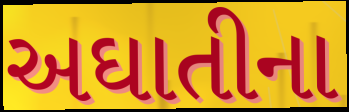
અઘાતીના